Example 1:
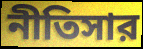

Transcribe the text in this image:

নীতিসার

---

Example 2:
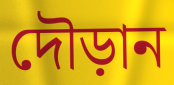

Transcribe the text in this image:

দৌড়ান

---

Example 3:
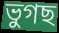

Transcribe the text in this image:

ভুগছ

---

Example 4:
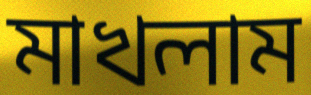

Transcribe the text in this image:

মাখলাম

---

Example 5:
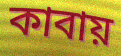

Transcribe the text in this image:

কাবায়